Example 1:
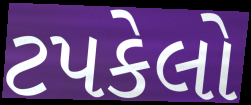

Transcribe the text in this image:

ટપકેલો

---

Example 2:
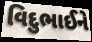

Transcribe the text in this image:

વિદુભાઈને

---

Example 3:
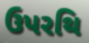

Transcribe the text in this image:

ઉપરથિ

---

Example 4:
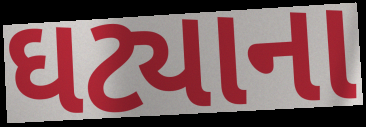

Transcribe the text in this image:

ઘટ્યાના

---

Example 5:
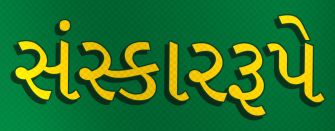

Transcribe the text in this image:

સંસ્કારરૂપે